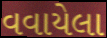
વવાયેલા